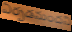
ఏర్పడనుందని